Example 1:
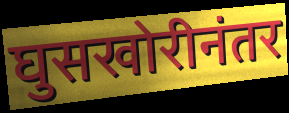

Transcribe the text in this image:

घुसखोरीनंतर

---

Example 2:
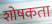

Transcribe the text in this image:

शोषकता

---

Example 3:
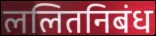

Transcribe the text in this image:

ललितनिबंध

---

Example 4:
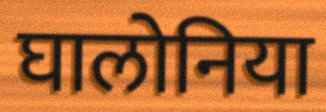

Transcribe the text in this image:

घालोनिया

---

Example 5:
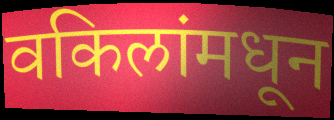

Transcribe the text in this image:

वकिलांमधून